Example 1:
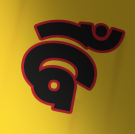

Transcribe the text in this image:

ବିଁ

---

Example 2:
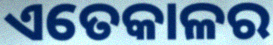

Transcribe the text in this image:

ଏତେକାଳର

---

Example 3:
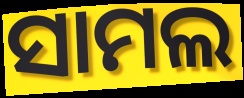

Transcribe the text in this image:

ସାମଲ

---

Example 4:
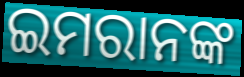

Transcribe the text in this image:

ଇମରାନଙ୍କ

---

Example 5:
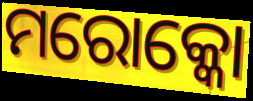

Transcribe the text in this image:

ମରୋକ୍କୋ